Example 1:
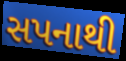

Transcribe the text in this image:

સપનાથી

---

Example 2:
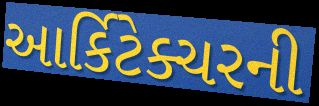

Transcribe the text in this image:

આર્કિટેક્ચરની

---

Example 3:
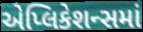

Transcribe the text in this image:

એપ્લિકેશન્સમાં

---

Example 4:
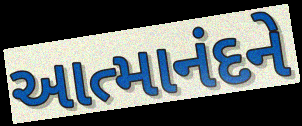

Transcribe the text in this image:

આત્માનંદને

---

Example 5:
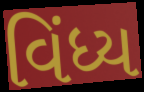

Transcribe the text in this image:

વિંધ્ય